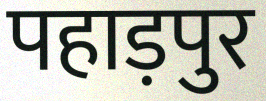
पहाड़पुर